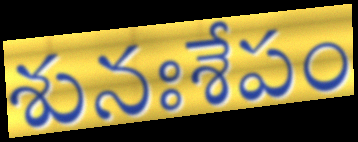
శునఃశేపం